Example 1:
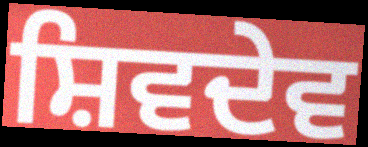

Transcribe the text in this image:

ਸ਼ਿਵਦੇਵ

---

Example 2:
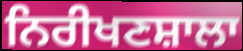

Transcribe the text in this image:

ਨਿਰੀਖਣਸ਼ਾਲਾ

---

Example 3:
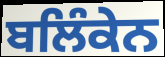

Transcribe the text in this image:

ਬਲਿੰਕੇਨ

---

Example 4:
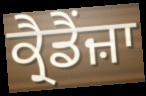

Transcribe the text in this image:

ਕ੍ਰੈਡੈਂਜ਼ਾ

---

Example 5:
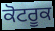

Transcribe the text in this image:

ਕੋਟਰੂਕ